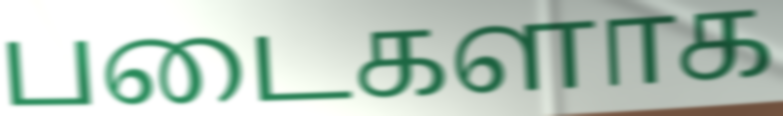
படைகளாக